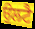
ਉਲਟੈ